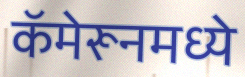
कॅमेरूनमध्ये